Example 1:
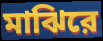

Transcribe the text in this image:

মাঝিরে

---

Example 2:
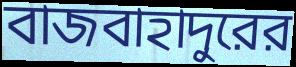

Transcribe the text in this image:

বাজবাহাদুরের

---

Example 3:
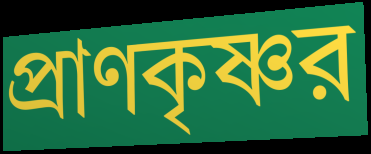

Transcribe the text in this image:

প্রাণকৃষ্ণর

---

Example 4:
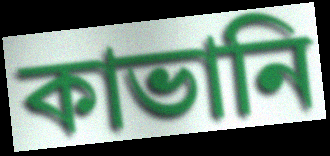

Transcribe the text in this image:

কাভানি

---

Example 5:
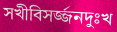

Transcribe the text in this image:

সখীবিসর্জ্জনদুঃখ